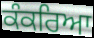
ਕੰਕਰਿਆ